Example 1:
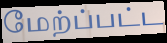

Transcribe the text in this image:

மேற்ப்பட்ட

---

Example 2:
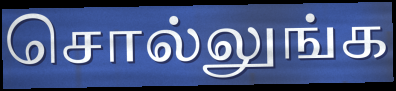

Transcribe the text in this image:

சொல்லுங்க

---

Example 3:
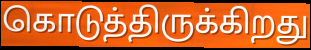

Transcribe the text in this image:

கொடுத்திருக்கிறது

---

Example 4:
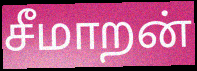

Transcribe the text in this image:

சீமாறன்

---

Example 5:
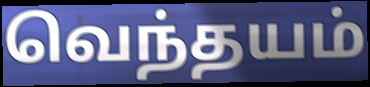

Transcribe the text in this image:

வெந்தயம்